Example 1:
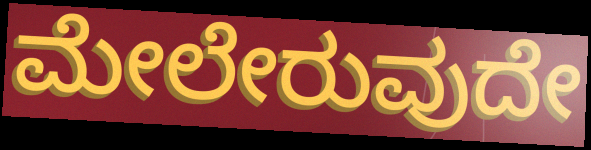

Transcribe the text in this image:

ಮೇಲೇರುವುದೇ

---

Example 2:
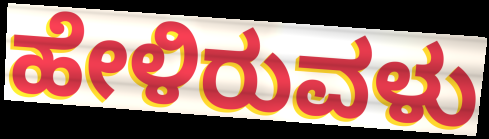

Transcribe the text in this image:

ಹೇಳಿರುವಳು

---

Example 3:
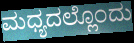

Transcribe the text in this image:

ಮಧ್ಯದಲ್ಲೊಂದು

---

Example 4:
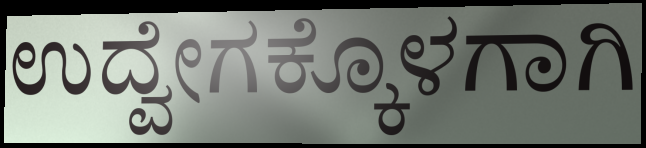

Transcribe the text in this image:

ಉದ್ವೇಗಕ್ಕೊಳಗಾಗಿ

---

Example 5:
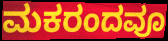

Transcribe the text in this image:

ಮಕರಂದವೂ